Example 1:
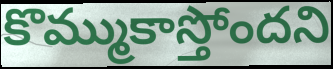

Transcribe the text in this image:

కొమ్ముకాస్తోందని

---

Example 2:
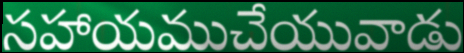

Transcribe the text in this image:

సహాయముచేయువాడు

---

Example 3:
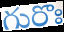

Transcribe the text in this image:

గురొః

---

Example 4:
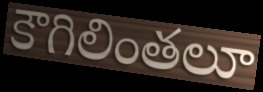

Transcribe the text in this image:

కౌగిలింతలూ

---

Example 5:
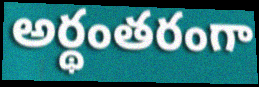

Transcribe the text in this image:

అర్థంతరంగా